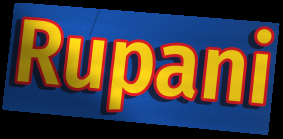
Rupani